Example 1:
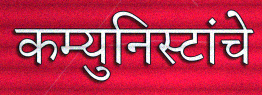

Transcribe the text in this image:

कम्युनिस्टांचे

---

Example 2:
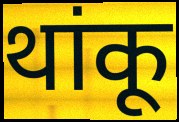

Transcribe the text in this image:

थांकू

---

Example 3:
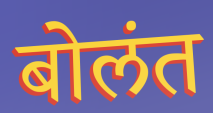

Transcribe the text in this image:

बोलंत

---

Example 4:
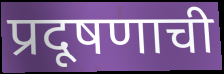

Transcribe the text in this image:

प्रदूषणाची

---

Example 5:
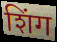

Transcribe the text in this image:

शिंग